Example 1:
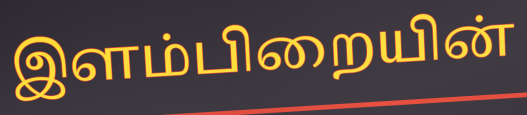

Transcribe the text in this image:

இளம்பிறையின்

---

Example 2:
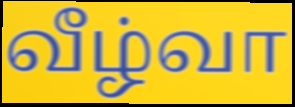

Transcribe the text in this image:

வீழ்வா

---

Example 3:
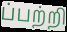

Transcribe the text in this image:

ப்பற்றி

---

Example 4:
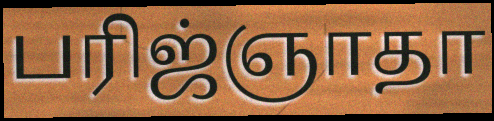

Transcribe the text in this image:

பரிஜ்ஞாதா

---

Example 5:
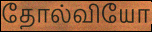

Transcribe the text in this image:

தோல்வியோ